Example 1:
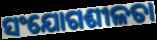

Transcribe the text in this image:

ସଂଯୋଗଶୀଳତା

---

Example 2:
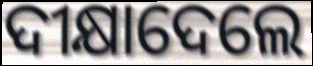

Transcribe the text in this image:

ଦୀକ୍ଷାଦେଲେ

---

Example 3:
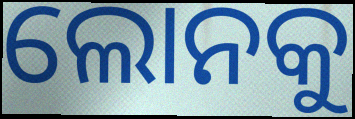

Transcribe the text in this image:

ଲୋନକୁ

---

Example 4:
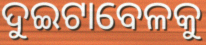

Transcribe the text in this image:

ଦୁଇଟାବେଳକୁ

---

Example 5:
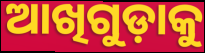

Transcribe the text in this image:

ଆଖିଗୁଡ଼ାକୁ